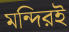
মন্দিরই